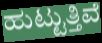
ಹುಟ್ಟುತ್ತಿವೆ